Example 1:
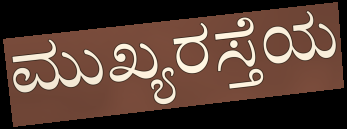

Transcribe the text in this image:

ಮುಖ್ಯರಸ್ತೆಯ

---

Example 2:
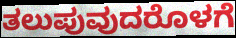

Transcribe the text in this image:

ತಲುಪುವುದರೊಳಗೆ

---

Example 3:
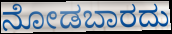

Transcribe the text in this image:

ನೋಡಬಾರದು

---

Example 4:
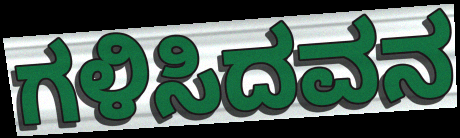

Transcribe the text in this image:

ಗಳಿಸಿದವನ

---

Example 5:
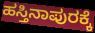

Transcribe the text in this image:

ಹಸ್ತಿನಾಪುರಕ್ಕೆ